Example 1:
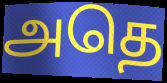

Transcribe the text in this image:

அதெ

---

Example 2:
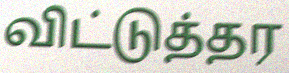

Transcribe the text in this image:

விட்டுத்தர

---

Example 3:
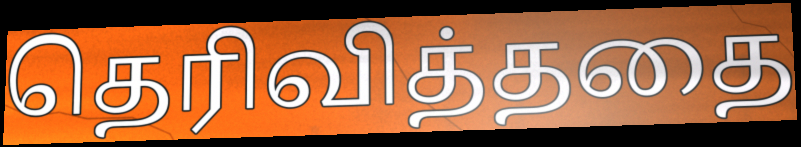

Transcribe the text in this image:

தெரிவித்ததை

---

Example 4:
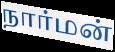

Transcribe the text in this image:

நார்மன்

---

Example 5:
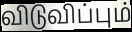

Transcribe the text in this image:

விடுவிப்பும்